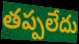
తప్పలేదు